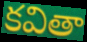
కవితా